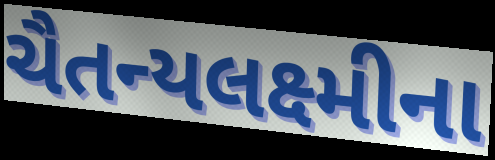
ચૈતન્યલક્ષ્મીના